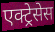
एक्ट्रेसेस